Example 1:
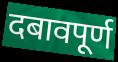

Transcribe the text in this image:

दबावपूर्ण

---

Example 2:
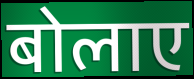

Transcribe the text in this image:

बोलाए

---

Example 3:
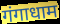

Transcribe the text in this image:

गंगाधाम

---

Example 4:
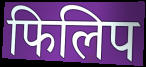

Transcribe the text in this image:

फिलिप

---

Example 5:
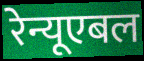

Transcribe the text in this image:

रेन्यूएबल